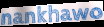
nankhawo